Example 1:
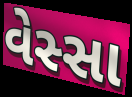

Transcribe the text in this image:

વેસ્સા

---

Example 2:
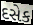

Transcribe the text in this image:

દસેક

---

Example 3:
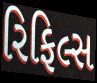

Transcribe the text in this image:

રિફિલ્સ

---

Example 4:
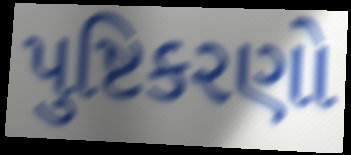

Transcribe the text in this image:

પુષ્ટિકરણો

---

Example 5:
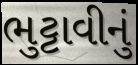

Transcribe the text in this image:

ભુટ્ટાવીનું